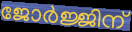
ജോർജ്ജിന്